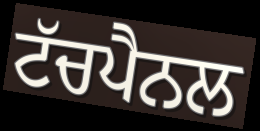
ਟੱਚਪੈਨਲ